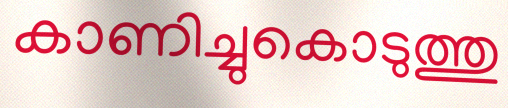
കാണിച്ചുകൊടുത്തു